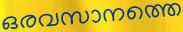
ഒരവസാനത്തെ